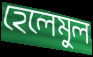
হেলেমুল